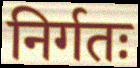
निर्गतः